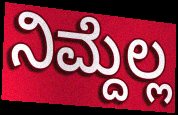
ನಿಮ್ದೆಲ್ಲ